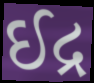
ઈદ્ર